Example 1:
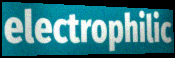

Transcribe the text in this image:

electrophilic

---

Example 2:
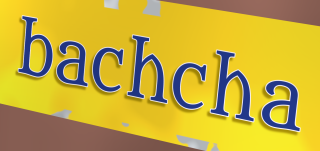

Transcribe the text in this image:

bachcha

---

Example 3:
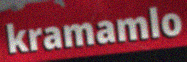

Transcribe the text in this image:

kramamlo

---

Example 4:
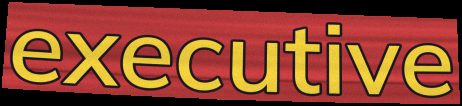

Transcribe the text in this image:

executive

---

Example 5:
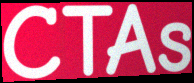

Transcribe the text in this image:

CTAs